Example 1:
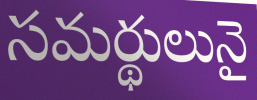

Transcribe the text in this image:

సమర్థులునై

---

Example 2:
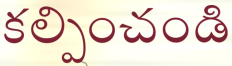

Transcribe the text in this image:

కల్పించండి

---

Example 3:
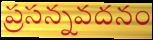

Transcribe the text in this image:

ప్రసన్నవదనం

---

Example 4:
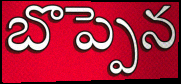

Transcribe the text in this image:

బొప్పెన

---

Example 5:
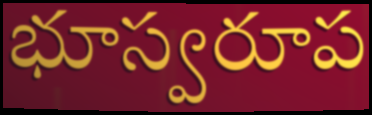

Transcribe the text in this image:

భూస్వరూప